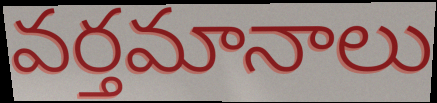
వర్తమానాలు